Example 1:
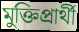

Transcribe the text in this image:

মুক্তিপ্রার্থী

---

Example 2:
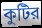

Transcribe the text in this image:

কুটির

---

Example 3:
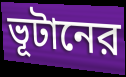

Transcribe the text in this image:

ভূটানের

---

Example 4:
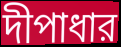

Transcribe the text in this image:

দীপাধার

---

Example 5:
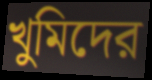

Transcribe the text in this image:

খুমিদের